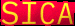
SICA